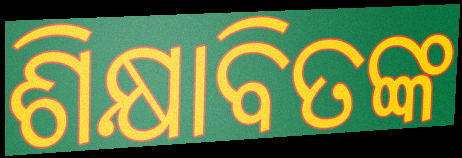
ଶିକ୍ଷାବିତଙ୍କ